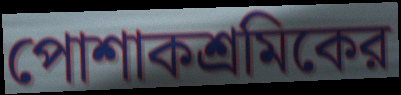
পোশাকশ্রমিকের